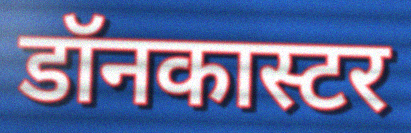
डॉनकास्टर